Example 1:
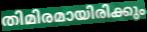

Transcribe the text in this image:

തിമിരമായിരിക്കും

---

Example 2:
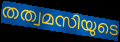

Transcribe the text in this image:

തത്വമസിയുടെ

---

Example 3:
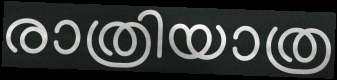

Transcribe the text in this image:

രാത്രിയാത്ര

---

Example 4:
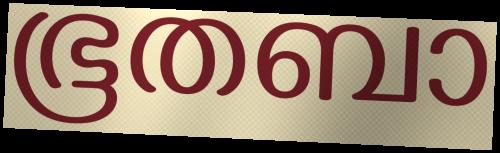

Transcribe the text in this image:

ഭൂതബാ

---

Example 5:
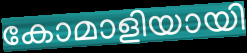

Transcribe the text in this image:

കോമാളിയായി